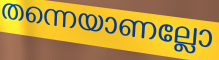
തന്നെയാണല്ലോ